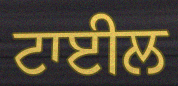
ਟਾਈਲ